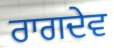
ਰਾਗਦੇਵ